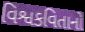
વિશ્વકવિતાનો